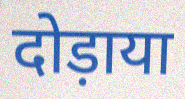
दोड़ाया